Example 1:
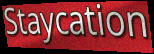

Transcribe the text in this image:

Staycation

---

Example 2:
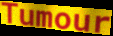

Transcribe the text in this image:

Tumour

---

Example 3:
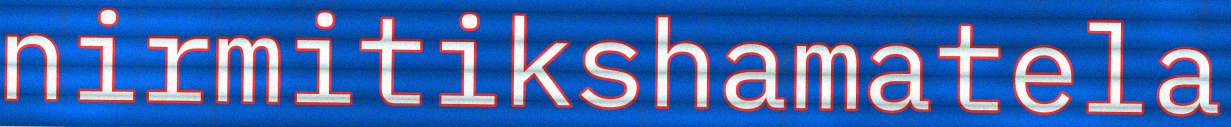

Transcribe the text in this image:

nirmitikshamatela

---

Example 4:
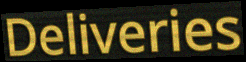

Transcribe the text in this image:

Deliveries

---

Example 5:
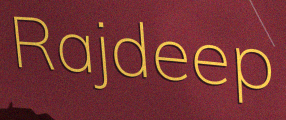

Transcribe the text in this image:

Rajdeep